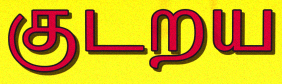
குடறய